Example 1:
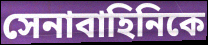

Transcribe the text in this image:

সেনাবাহিনিকে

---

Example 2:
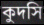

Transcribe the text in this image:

কুদসি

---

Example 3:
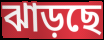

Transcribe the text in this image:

ঝাড়ছে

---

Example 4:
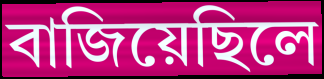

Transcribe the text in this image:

বাজিয়েছিলে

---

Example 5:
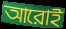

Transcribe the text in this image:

আরোই